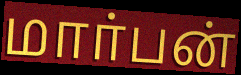
மார்பன்